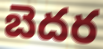
బెదర